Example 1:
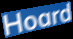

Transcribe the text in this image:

Hoard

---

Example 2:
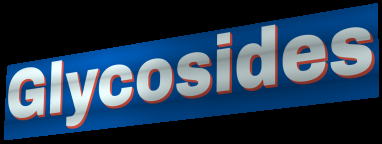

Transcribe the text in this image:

Glycosides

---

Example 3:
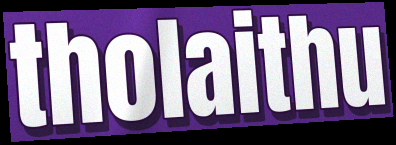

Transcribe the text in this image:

tholaithu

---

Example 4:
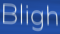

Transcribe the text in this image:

Bligh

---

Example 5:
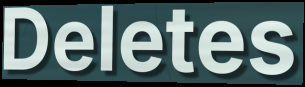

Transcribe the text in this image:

Deletes